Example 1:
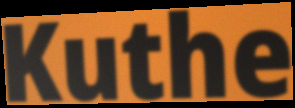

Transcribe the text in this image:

Kuthe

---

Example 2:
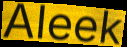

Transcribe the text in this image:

Aleek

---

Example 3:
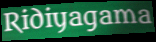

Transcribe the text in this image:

Ridiyagama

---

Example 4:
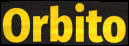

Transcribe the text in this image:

Orbito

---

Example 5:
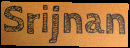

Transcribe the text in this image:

Srijnan